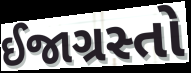
ઈજાગ્રસ્તો